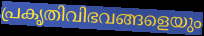
പ്രകൃതിവിഭവങ്ങളെയും